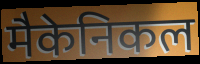
मैकेनिकल